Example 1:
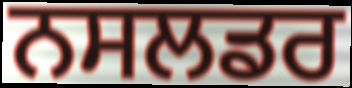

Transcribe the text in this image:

ਨਸਲਡਰ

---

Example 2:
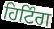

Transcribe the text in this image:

ਹਿਟਿੰਗ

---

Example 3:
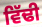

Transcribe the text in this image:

ਵਿੱਢੀ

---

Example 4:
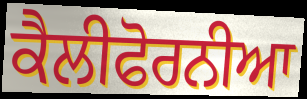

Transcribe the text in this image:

ਕੈਲੀਫੋਰਨੀਆ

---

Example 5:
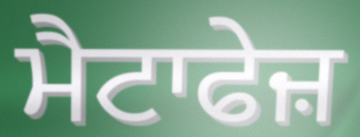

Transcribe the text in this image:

ਮੈਟਾਫੇਜ਼